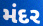
મંદર